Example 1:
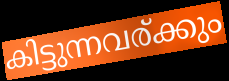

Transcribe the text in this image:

കിട്ടുന്നവര്ക്കും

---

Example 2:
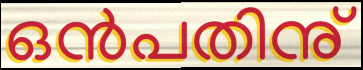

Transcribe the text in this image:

ഒൻപതിനു്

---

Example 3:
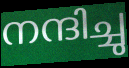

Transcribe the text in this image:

നന്ദിച്ചു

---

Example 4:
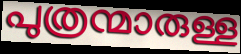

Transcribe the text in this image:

പുത്രന്മാരുള്ള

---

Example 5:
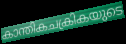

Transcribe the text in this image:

കാന്തികചക്രികയുടെ